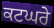
ਕਟਘਰੇ